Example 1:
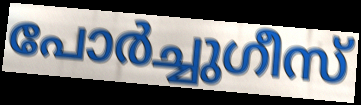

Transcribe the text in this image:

പോർച്ചുഗീസ്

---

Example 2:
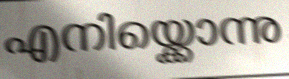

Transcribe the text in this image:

എനിയ്ക്കൊന്നു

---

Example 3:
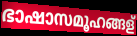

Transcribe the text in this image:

ഭാഷാസമൂഹങ്ങള്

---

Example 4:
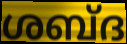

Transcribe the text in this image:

ശബ്ദ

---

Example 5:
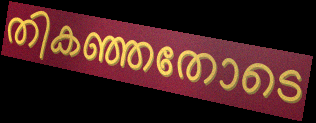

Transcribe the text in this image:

തികഞ്ഞതോടെ